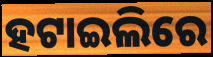
ହଟାଇଲିରେ